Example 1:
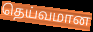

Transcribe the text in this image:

தெய்வமான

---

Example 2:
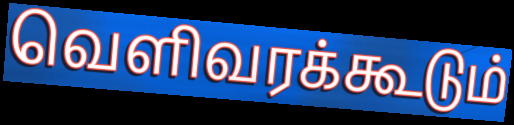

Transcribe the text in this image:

வெளிவரக்கூடும்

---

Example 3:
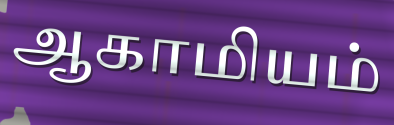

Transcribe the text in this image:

ஆகாமியம்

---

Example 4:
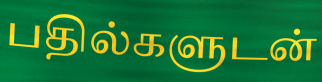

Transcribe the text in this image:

பதில்களுடன்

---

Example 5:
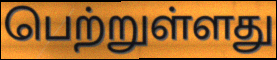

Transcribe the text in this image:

பெற்றுள்ளது